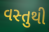
વસ્તુથી